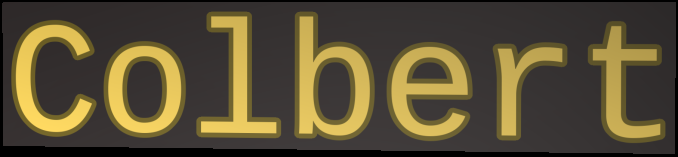
Colbert